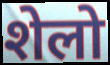
शेलो